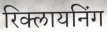
रिक्लायनिंग